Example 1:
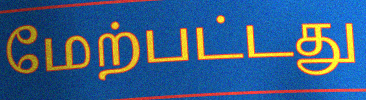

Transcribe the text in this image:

மேற்பட்டது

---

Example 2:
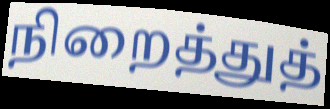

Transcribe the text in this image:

நிறைத்துத்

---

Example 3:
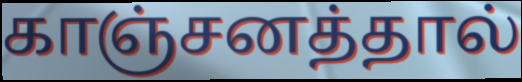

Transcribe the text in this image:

காஞ்சனத்தால்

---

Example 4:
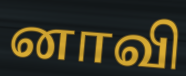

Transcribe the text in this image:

னாவி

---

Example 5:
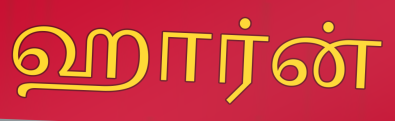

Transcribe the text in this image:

ஹார்ன்